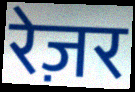
रेज़र